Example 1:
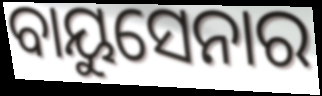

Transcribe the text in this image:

ବାୟୁସେନାର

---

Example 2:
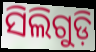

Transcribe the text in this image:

ସିଲିଗୁଡ଼ି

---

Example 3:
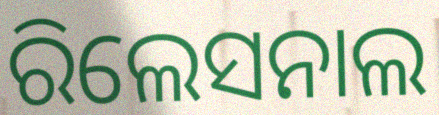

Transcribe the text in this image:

ରିଲେସନାଲ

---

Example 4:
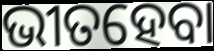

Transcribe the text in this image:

ଭୀତହେବା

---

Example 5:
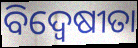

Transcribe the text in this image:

ବିଦ୍ଵେଷୀତା